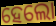
ହେଲୋ